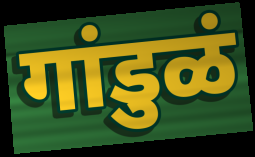
गांडुळं